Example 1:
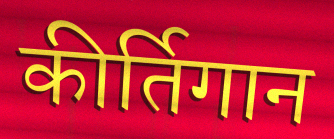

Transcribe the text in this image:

कीर्तिगान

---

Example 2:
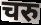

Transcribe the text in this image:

चरु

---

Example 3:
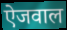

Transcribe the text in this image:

ऐजवाल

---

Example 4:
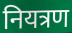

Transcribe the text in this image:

नियत्रण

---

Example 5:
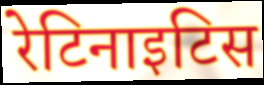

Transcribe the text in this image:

रेटिनाइटिस